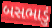
બસભાડું